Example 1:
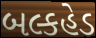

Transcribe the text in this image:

બલ્કહેડ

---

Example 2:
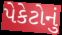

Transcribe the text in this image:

પેકેટોનું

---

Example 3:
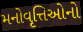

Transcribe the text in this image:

મનોવૃત્તિઓનો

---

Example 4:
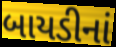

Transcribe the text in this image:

બાયડીનાં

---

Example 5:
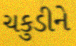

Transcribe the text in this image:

ચકુડીને